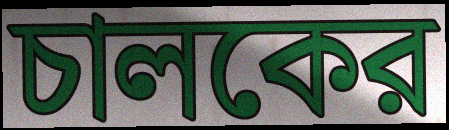
চালকের